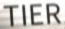
TIER